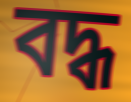
বদ্ধ